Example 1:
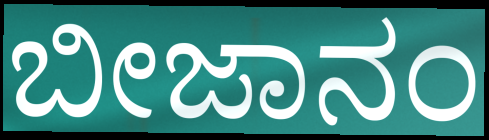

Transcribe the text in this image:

ಬೀಜಾನಂ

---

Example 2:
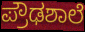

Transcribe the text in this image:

ಪ್ರೌಢಶಾಲೆ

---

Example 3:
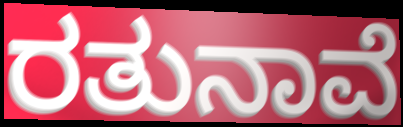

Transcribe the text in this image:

ರತುನಾವೆ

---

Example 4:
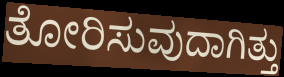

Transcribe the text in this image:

ತೋರಿಸುವುದಾಗಿತ್ತು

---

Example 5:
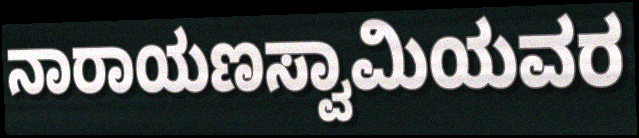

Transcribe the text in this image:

ನಾರಾಯಣಸ್ವಾಮಿಯವರ